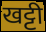
खट्टी